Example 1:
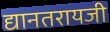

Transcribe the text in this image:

द्यानतरायजी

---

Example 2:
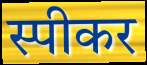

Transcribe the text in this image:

स्‍पीकर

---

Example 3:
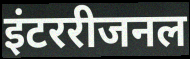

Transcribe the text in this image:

इंटररीजनल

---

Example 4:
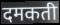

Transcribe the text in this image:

दमकती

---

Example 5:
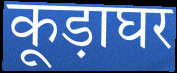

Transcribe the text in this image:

कूड़ाघर